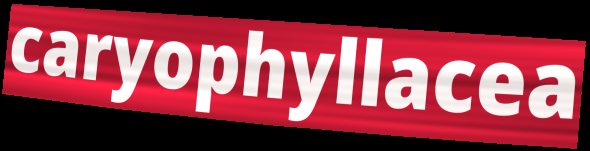
caryophyllacea